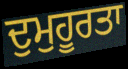
ਦੁਮੁਹੂਰਤਾ